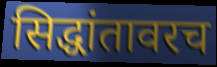
सिद्धांतावरच